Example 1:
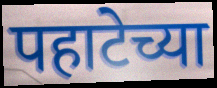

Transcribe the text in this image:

पहाटेच्या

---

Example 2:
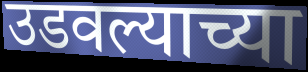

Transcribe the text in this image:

उडवल्याच्या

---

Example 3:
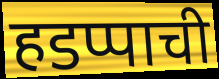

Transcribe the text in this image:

हडप्पाची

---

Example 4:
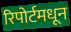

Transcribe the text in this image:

रिपोर्टमधून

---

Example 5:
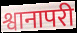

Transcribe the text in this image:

श्वानापरी